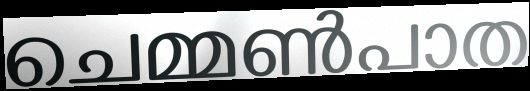
ചെമ്മൺപാത